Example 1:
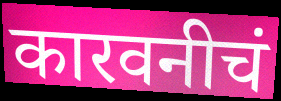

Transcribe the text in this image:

कारवनीचं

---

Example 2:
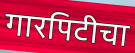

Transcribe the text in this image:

गारपिटीचा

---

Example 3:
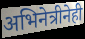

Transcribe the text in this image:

अभिनेत्रीनेही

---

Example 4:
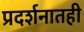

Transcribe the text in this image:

प्रदर्शनातही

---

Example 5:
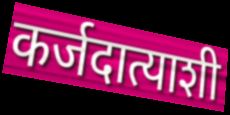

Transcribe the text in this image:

कर्जदात्याशी